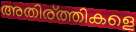
അതിര്ത്തികളെ